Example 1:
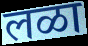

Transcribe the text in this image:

लळा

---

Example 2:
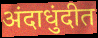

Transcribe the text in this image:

अंदाधुंदीत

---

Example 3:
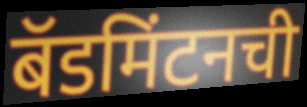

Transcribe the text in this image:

बॅडमिंटनची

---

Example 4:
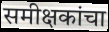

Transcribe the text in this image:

समीक्षकांचा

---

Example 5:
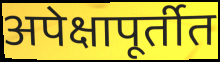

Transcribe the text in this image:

अपेक्षापूर्तीत